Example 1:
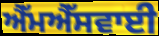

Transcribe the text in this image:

ਐੱਮਐੱਸਵਾਈ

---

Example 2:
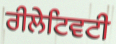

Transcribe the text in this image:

ਰੀਲੇਟਿਵਟੀ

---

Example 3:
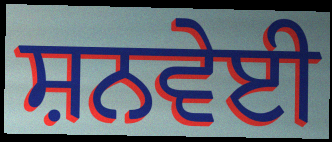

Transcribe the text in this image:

ਸ਼ਨਵੇਈ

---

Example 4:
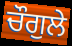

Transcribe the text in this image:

ਚੌਗੁਲੇ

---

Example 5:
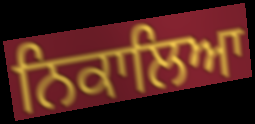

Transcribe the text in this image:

ਨਿਕਾਲਿਆ